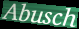
Abusch